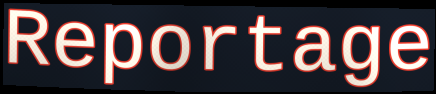
Reportage